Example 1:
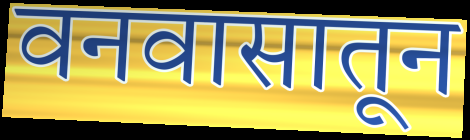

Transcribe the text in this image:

वनवासातून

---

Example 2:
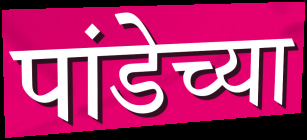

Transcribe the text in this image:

पांडेच्या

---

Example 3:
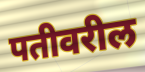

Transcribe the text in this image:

पतीवरील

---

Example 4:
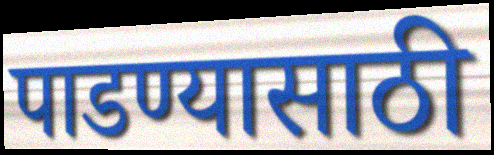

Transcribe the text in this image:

पाडण्यासाठी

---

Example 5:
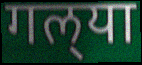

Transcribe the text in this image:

गल्या